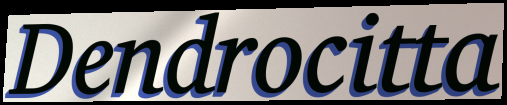
Dendrocitta